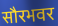
सौरभवर